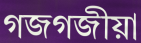
গজগজীয়া